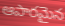
ఆపారమైన